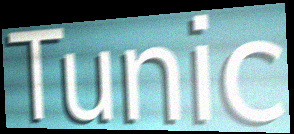
Tunic